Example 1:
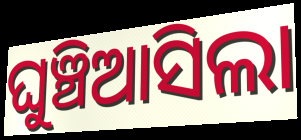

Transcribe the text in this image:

ଘୁଞ୍ଚିଆସିଲା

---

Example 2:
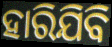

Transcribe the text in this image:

ହାରିଯିବି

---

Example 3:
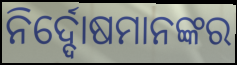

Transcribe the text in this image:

ନିର୍ଦ୍ଦୋଷମାନଙ୍କର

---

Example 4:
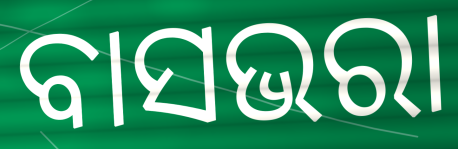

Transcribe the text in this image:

ବାସଭରା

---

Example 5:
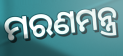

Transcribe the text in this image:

ମରଣମନ୍ତ୍ର